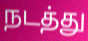
நடத்து